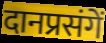
दानप्रसंगें